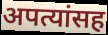
अपत्यांसह